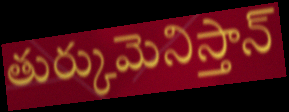
తుర్కుమెనిస్తాన్